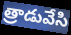
త్రాడువేసి